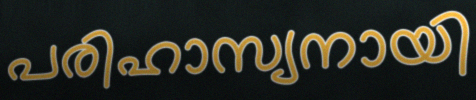
പരിഹാസ്യനായി